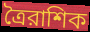
ত্রৈরাশিক